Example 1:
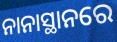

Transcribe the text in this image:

ନାନାସ୍ଥାନରେ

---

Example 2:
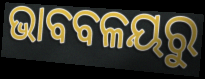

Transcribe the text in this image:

ଭାବବଳୟରୁ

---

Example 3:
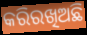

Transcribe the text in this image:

କରିରଖିଅଛି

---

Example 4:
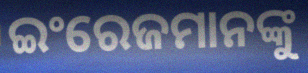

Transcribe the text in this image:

ଇଂରେଜମାନଙ୍କୁ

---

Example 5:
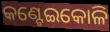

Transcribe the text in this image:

କଣ୍ଟେଇକୋଳି